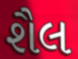
શૈલ